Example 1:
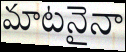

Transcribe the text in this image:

మాటనైనా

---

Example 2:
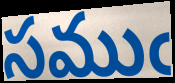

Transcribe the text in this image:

సముఁ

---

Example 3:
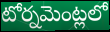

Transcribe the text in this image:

టోర్నమెంట్లలో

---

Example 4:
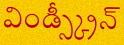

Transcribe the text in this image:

విండ్స్క్రీన్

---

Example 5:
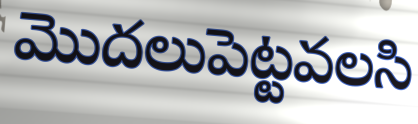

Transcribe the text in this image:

మొదలుపెట్టవలసి